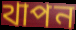
থাপন